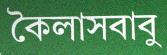
কৈলাসবাবু